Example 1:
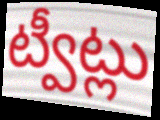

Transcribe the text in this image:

ట్వీట్లు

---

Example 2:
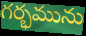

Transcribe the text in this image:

గర్భమును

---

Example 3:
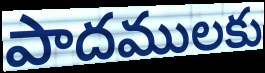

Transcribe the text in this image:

పాదములకు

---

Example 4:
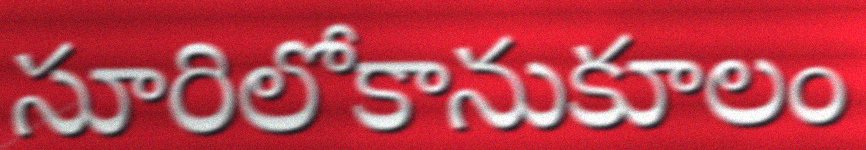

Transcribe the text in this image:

సూరిలోకానుకూలం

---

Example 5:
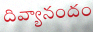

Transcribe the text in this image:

దివ్యానందం